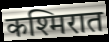
कश्मिरात